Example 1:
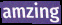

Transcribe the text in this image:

amzing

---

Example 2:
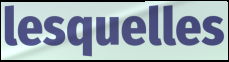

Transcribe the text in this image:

lesquelles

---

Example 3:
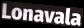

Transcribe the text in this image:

Lonavala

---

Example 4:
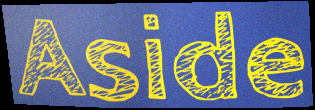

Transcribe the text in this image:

Aside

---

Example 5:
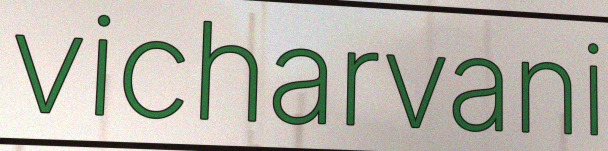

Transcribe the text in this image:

vicharvani